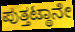
ಪುತ್ತಟ್ಠಾನೇ